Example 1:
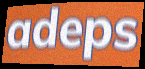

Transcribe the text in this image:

adeps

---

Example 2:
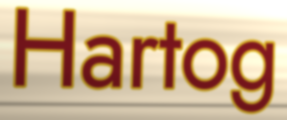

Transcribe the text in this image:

Hartog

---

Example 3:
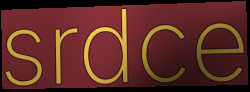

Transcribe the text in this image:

srdce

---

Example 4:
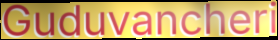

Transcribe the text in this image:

Guduvancheri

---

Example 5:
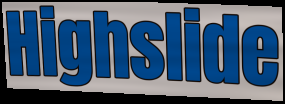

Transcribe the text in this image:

Highslide